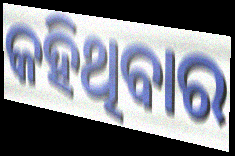
କହିଥିବାର